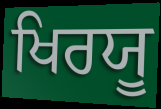
ਖਿਰਯੂ